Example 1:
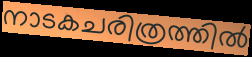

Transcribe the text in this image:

നാടകചരിത്രത്തിൽ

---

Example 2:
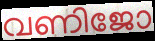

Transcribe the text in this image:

വണിജോ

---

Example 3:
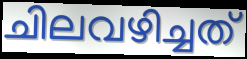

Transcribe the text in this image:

ചിലവഴിച്ചത്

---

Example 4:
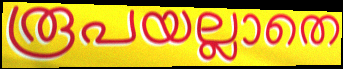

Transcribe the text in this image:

രൂപയല്ലാതെ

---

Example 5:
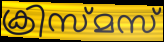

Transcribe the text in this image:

ക്രിസ്മസ്